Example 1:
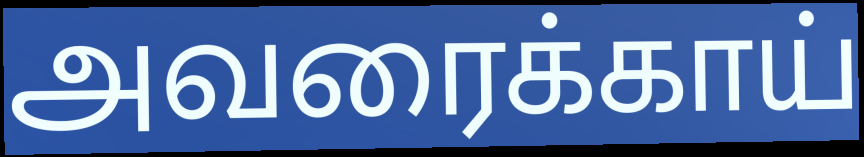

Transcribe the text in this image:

அவரைக்காய்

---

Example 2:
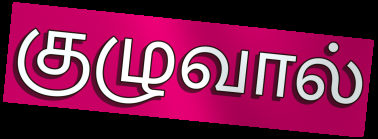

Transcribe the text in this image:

குழுவால்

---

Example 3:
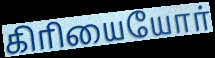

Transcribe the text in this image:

கிரியையோர்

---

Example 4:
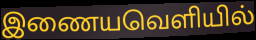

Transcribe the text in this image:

இணையவெளியில்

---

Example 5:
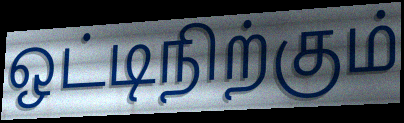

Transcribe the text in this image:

ஒட்டிநிற்கும்